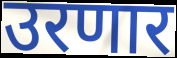
उरणार